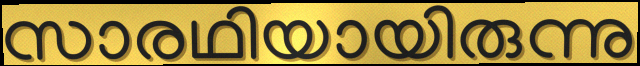
സാരഥിയായിരുന്നു